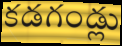
కడగండ్లు